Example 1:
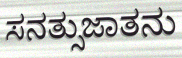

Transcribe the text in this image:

ಸನತ್ಸುಜಾತನು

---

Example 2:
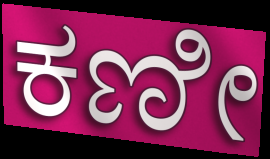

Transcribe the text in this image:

ಕಣೀ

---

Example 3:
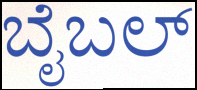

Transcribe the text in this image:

ಬೈಬಲ್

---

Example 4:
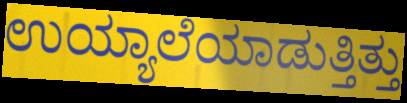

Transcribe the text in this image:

ಉಯ್ಯಾಲೆಯಾಡುತ್ತಿತ್ತು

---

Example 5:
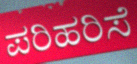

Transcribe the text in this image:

ಪರಿಹರಿಸೆ